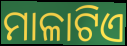
ମାଳାଟିଏ